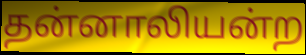
தன்னாலியன்ற